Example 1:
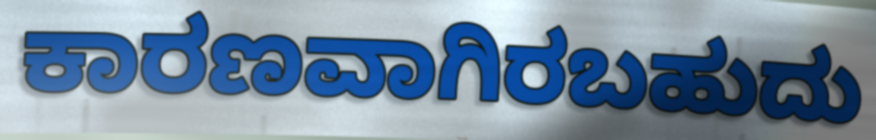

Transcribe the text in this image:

ಕಾರಣವಾಗಿರಬಹುದು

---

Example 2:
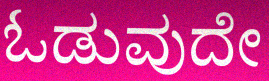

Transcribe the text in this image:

ಓಡುವುದೇ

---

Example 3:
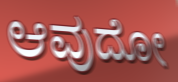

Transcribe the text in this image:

ಆವುದೋ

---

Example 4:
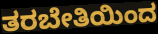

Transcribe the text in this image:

ತರಬೇತಿಯಿಂದ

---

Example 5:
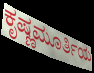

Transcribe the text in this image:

ಕೃಷ್ಣಮೂರ್ತಿಯ